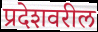
प्रदेशवरील